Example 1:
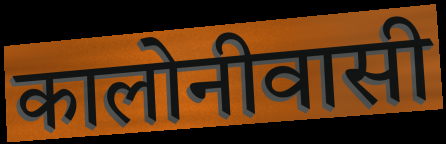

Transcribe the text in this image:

कालोनीवासी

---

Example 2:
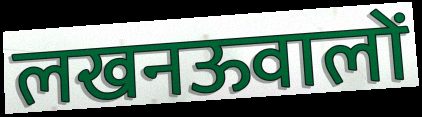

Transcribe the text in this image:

लखनऊवालों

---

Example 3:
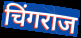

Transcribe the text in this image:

चिंगराज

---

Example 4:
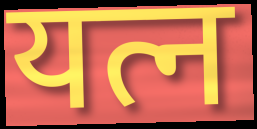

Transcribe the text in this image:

यत्न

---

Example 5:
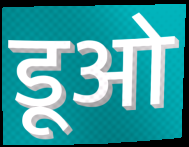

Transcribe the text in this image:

डूओ